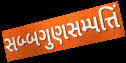
સબ્બગુણસમ્પત્તિં